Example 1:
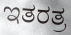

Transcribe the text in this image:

ಇತರತ್ರ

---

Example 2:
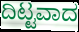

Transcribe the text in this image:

ದಿಟ್ಟವಾದ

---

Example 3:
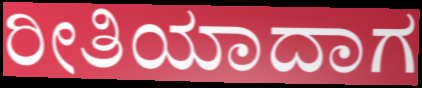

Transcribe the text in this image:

ರೀತಿಯಾದಾಗ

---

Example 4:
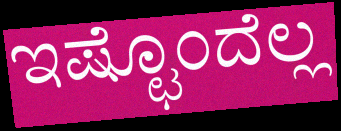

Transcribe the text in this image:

ಇಷ್ಟೊಂದೆಲ್ಲ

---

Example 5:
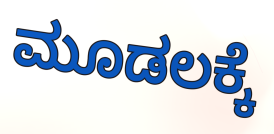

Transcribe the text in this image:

ಮೂಡಲಕ್ಕೆ